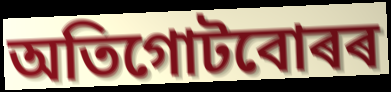
অতিগোটবোৰৰ